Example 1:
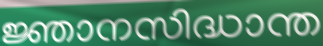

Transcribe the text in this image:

ജ്ഞാനസിദ്ധാന്ത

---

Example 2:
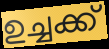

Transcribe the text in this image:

ഉച്ചക്ക്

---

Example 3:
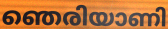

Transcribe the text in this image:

ഞെരിയാണി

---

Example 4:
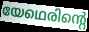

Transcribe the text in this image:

യേഥെരിന്റെ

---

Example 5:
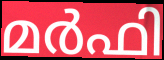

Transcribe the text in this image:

മർഫി